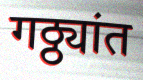
गठ्ठ्यांत